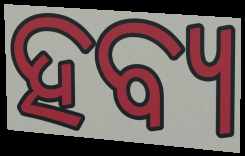
ହବ୍ୟ